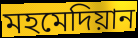
মহমেদিয়ান